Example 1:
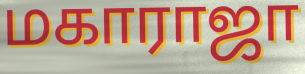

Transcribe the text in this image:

மகாராஜா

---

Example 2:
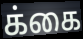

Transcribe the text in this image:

க்கை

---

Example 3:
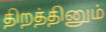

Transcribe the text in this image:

திறத்தினும்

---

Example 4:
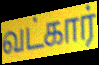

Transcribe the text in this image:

வட்கார்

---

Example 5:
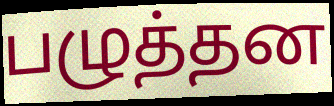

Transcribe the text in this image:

பழுத்தன